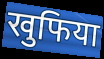
खुफिया